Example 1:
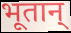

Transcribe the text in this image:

भूतान्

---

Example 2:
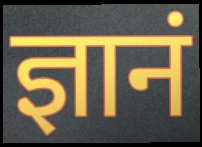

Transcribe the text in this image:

ज्ञानं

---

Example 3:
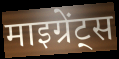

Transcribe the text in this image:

माइग्रेंट्स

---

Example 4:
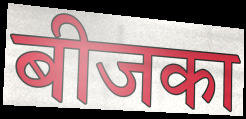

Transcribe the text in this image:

बीजका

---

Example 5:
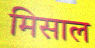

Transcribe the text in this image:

मिसाल